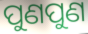
ପୁଣପୁଣ